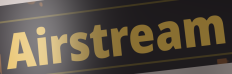
Airstream